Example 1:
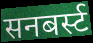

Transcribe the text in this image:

सनबर्स्ट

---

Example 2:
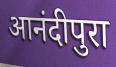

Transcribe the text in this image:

आनंदीपुरा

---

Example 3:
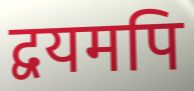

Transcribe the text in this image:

द्वयमपि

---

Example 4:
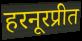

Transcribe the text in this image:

हरनूरप्रीत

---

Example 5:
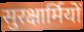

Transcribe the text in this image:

सुरक्षार्मियों